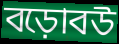
বড়োবউ